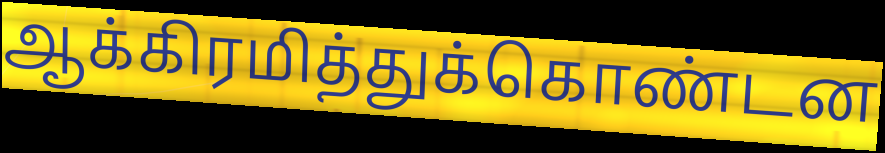
ஆக்கிரமித்துக்கொண்டன